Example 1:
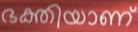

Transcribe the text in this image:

ഭക്തിയാണ്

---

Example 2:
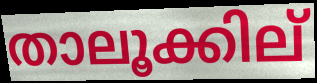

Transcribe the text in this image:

താലൂക്കില്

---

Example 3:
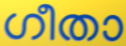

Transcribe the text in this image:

ഗീതാ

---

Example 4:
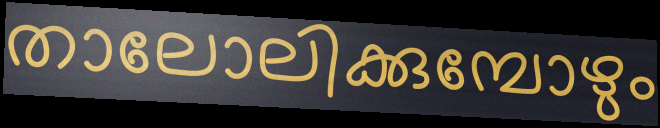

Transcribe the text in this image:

താലോലിക്കുമ്പോഴും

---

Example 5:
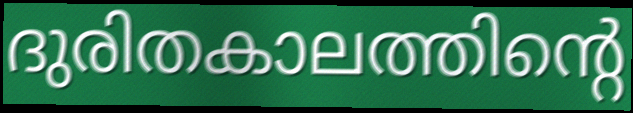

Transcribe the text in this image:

ദുരിതകാലത്തിന്റെ